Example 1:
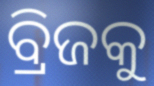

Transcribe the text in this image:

ବ୍ରିଜକୁ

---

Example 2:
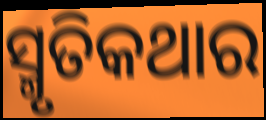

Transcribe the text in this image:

ସ୍ମୃତିକଥାର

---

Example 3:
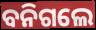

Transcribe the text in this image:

ବନିଗଲେ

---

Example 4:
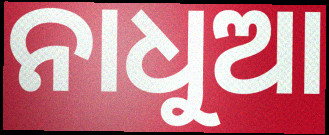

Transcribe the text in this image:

ନାଧୁଆ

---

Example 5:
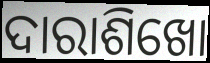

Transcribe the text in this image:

ଦାରାଶିଖୋ